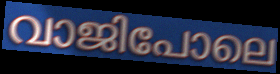
വാജിപോലെ